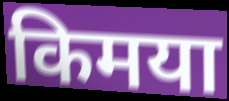
किमया